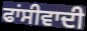
ਫਾਂਸੀਵਾਦੀ